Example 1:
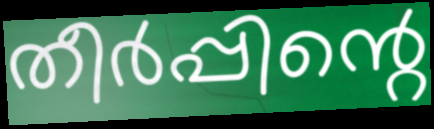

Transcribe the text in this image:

തീർപ്പിന്റെ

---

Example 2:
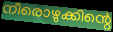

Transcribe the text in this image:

നീരൊഴുക്കിന്റെ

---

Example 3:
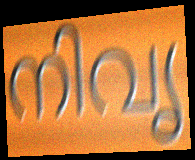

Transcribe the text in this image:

നിവൃ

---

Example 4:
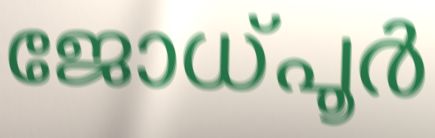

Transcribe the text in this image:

ജോധ്പൂർ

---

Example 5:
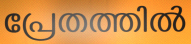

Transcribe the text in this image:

പ്രേതത്തിൽ